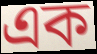
এক